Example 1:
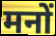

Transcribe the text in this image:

मनों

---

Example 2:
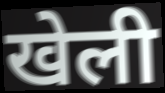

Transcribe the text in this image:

खेली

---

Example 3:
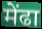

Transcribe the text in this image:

मेंढा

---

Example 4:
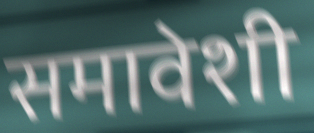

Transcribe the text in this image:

समावेशी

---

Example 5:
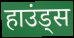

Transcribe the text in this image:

हाउंड्स